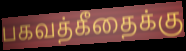
பகவத்கீதைக்கு